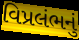
વિપ્રલંભનું